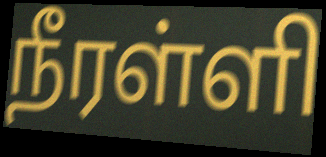
நீரள்ளி